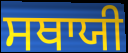
ਸਥਾਯੀ